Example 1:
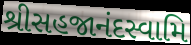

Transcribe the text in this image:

શ્રીસહજાનંદસ્વામિ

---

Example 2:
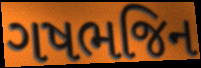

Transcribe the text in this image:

ગષભજિન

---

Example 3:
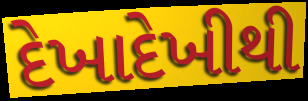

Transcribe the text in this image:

દેખાદેખીથી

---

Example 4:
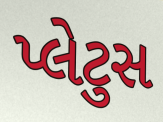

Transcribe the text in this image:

પ્લેટુસ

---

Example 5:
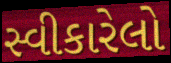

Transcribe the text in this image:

સ્વીકારેલો